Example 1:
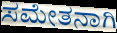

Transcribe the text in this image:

ಸಮೇತನಾಗಿ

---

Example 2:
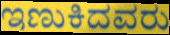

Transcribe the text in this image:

ಇಣುಕಿದವರು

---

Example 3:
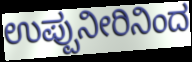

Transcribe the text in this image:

ಉಪ್ಪುನೀರಿನಿಂದ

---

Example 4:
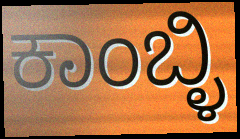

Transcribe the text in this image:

ಕಾಂಬ್ಳಿ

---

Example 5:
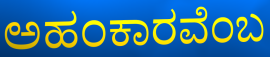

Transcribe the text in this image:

ಅಹಂಕಾರವೆಂಬ